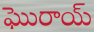
ఘొరాయ్